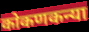
कोकणकन्या